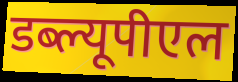
डब्ल्यूपीएल